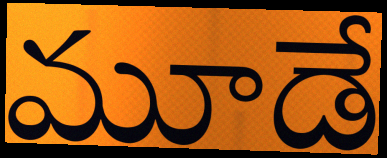
మూడే